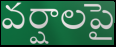
వర్షాలపై